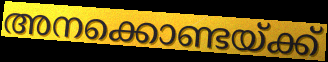
അനക്കൊണ്ടയ്ക്ക്